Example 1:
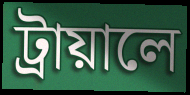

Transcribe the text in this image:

ট্রায়ালে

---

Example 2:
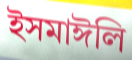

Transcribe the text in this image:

ইসমাঈলি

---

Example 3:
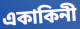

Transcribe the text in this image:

একাকিনী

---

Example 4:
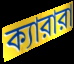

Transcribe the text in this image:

ক্যারারা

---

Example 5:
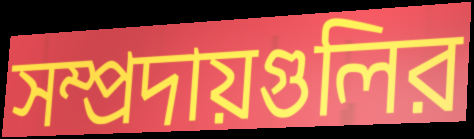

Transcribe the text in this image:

সম্প্রদায়গুলির